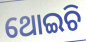
ଥୋଇଚି